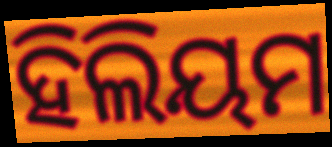
ହିଲିୟମ